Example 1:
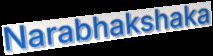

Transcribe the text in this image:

Narabhakshaka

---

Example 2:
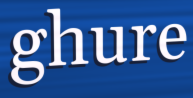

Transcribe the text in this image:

ghure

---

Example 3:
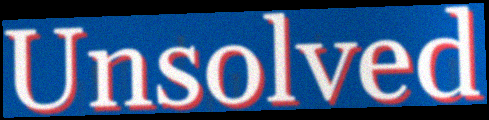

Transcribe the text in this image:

Unsolved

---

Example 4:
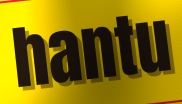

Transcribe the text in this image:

hantu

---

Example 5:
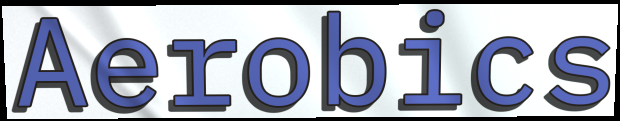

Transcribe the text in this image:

Aerobics